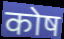
कोष